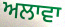
ਅਲਾਵਾ